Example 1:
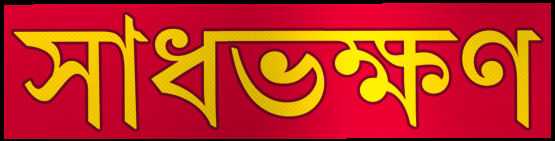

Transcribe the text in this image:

সাধভক্ষণ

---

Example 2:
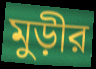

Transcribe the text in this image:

মুড়ীর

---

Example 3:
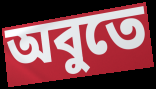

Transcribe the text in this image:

অবুতে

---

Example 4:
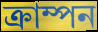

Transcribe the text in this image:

ক্রাম্পন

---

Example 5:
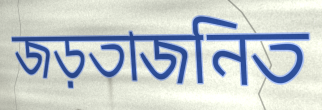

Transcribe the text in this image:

জড়তাজনিত